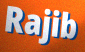
Rajib